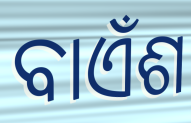
ବାଏଁଶ